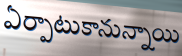
ఏర్పాటుకానున్నాయి